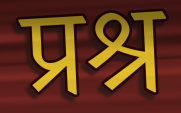
प्रश्र